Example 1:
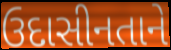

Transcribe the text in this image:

ઉદાસીનતાને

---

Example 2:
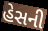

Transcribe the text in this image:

હેસની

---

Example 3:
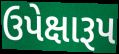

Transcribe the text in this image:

ઉપેક્ષારૂપ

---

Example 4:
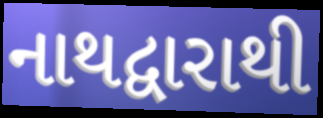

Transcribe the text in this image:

નાથદ્વારાથી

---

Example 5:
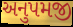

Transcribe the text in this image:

અનુપમજી